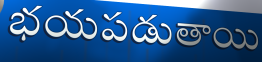
భయపడుతాయి